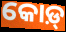
କୋଡ଼୍